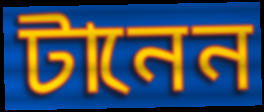
টানেন